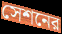
সেশনের